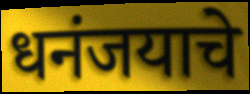
धनंजयाचे